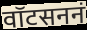
वॉटसननं